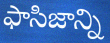
ఫాసిజాన్ని